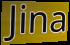
Jina